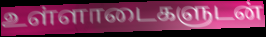
உள்ளாடைகளுடன்